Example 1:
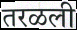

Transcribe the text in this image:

तरळली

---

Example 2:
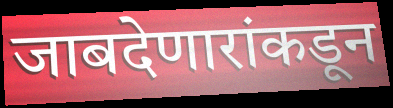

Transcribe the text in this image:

जाबदेणारांकडून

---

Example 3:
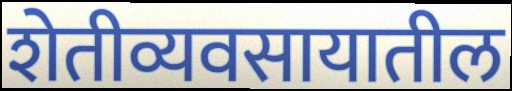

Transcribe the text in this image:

शेतीव्यवसायातील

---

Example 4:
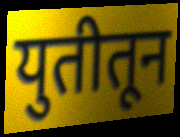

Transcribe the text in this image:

युतीतून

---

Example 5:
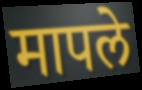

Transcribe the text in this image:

मापले